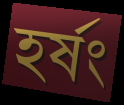
হর্ষং